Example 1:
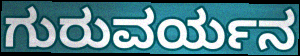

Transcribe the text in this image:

ಗುರುವರ್ಯನ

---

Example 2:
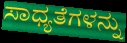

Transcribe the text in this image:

ಸಾಧ್ಯತೆಗಳನ್ನು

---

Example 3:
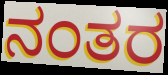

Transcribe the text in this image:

ನಂತರ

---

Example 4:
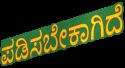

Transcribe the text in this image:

ಪಡಿಸಬೇಕಾಗಿದೆ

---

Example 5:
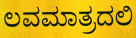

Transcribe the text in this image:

ಲವಮಾತ್ರದಲಿ